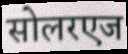
सोलरएज